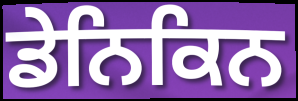
ਡੇਨਿਕਿਨ